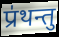
प्र॑थन्तु